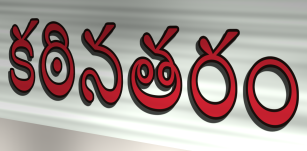
కఠినతరం